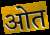
ओत